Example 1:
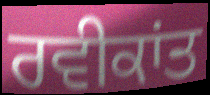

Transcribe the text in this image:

ਰਵੀਕਾਂਤ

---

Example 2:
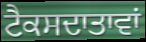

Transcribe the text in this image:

ਟੈਕਸਦਾਤਾਵਾਂ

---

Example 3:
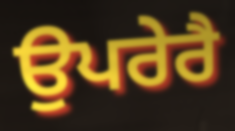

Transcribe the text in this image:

ਉਪਰੇਰੈ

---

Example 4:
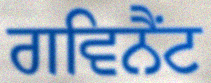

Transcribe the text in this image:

ਗਵਿਨੈਂਟ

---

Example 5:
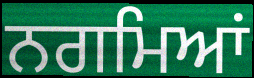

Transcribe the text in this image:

ਨਗਮਿਆਂ